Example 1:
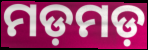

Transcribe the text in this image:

ମଡ଼ମଡ଼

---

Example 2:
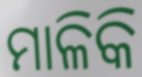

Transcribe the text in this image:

ମାଳିକି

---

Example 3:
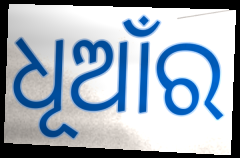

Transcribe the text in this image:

ଧୂଆଁର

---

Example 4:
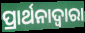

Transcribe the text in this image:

ପ୍ରାର୍ଥନାଦ୍ଵାରା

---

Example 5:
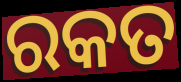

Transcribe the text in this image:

ରକତ